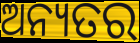
ଅନ୍ୟତର